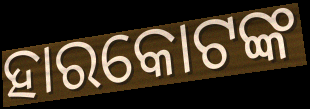
ହାରକୋଟଙ୍କ